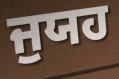
ਜੁਯਹ